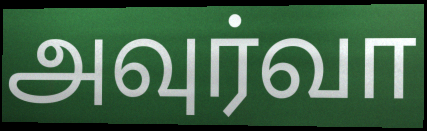
அவுர்வா